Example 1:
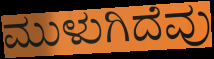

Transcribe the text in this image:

ಮುಳುಗಿದೆವು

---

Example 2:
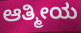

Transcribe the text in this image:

ಆತ್ಮೀಯ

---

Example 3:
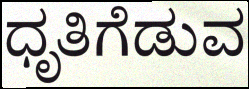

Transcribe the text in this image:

ಧೃತಿಗೆಡುವ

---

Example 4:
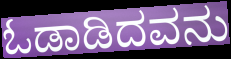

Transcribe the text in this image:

ಓಡಾಡಿದವನು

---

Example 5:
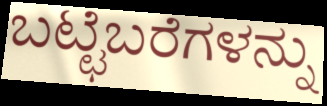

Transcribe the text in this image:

ಬಟ್ಟೆಬರೆಗಳನ್ನು